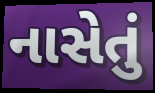
નાસેતું